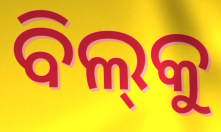
ବିଲ୍‌କୁ